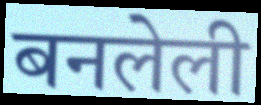
बनलेली